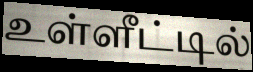
உள்ளீட்டில்